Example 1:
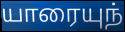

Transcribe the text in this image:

யாரையுந்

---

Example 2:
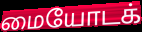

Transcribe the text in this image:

மையோடக்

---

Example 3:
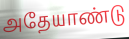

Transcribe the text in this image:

அதேயாண்டு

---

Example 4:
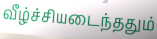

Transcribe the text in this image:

வீழ்ச்சியடைந்ததும்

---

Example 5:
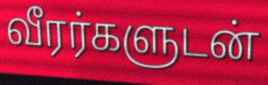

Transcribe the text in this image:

வீரர்களுடன்